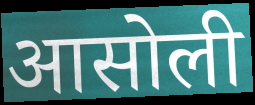
आसोली